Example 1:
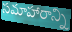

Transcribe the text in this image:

సమాహారాన్ని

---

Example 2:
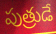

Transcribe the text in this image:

పుత్రుడే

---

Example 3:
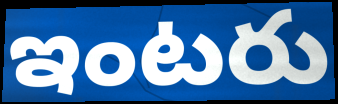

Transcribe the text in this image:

ఇంటరు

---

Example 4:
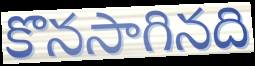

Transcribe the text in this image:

కొనసాగినది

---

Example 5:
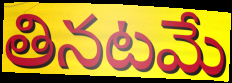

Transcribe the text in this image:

తినటమే